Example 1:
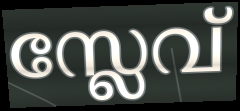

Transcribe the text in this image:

സ്ലേവ്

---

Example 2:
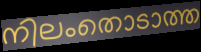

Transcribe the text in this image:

നിലംതൊടാത്ത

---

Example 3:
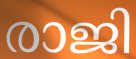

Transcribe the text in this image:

രാജി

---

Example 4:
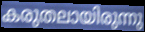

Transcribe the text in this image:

കരുതലായിരുന്നു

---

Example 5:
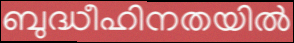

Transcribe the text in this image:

ബുദ്ധീഹിനതയിൽ